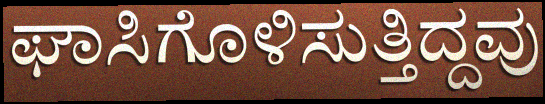
ಘಾಸಿಗೊಳಿಸುತ್ತಿದ್ದವು